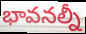
భావనల్నీ